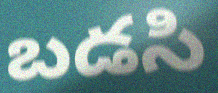
బడసి